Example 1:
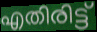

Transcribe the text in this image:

എതിരിട്ട്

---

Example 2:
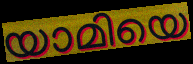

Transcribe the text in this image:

യാമിയെ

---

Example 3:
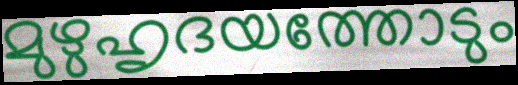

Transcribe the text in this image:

മുഴുഹൃദയത്തോടും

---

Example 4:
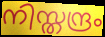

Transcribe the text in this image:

നിസ്തന്ദ്രം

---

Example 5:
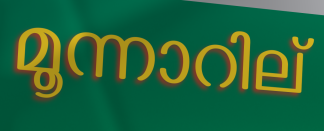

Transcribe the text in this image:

മൂന്നാറില്